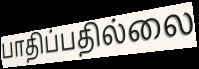
பாதிப்பதில்லை